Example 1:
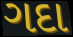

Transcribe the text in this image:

ગદા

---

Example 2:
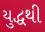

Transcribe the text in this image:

યુદ્ધથી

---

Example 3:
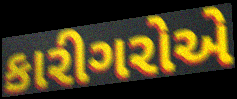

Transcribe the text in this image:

કારીગરોએ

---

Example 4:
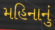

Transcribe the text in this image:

મહિનાનું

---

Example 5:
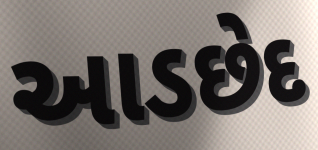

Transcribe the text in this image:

આડછેદ